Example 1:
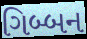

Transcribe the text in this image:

ગિબ્બન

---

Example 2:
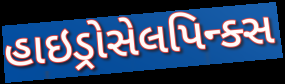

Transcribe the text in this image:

હાઇડ્રોસેલપિન્ક્સ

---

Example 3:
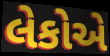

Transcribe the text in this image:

લેકોએ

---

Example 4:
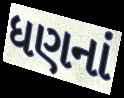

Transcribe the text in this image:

ધણનાં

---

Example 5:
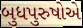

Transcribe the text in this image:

બુધપુરુષોએ